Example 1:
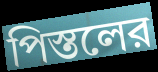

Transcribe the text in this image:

পিস্তলের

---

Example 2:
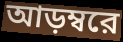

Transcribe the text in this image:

আড়ম্বরে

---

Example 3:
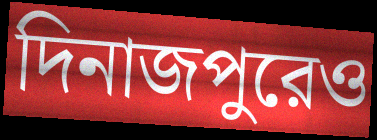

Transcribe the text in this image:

দিনাজপুরেও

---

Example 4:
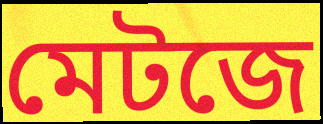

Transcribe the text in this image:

মেটজে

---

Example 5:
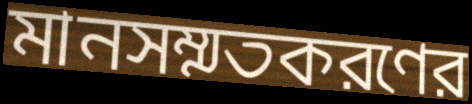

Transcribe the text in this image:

মানসম্মতকরণের